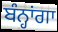
ਬੰਨ੍ਹਾਂਗਾ